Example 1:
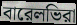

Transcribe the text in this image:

বারেলভিরা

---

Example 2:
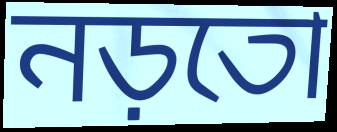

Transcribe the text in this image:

নড়তো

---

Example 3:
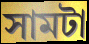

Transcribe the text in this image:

সামটা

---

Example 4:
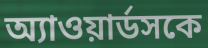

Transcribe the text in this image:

অ্যাওয়ার্ডসকে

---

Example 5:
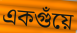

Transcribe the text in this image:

একগুঁয়ে